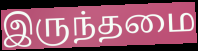
இருந்தமை